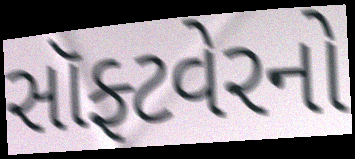
સૉફ્ટવેરનો